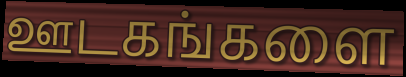
ஊடகங்களை